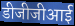
डीजीजीआई